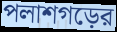
পলাশগড়ের